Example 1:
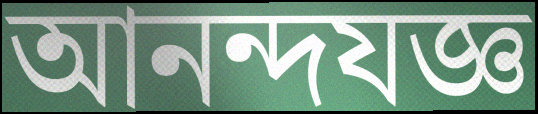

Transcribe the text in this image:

আনন্দযজ্ঞ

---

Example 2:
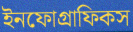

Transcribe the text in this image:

ইনফোগ্রাফিকস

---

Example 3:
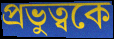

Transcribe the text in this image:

প্রভুত্বকে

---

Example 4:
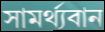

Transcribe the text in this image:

সামর্থ্যবান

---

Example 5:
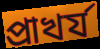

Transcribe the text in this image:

প্রাখর্য